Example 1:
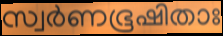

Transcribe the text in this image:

സ്വർണഭൂഷിതാഃ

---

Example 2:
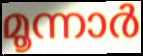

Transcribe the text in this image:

മൂന്നാർ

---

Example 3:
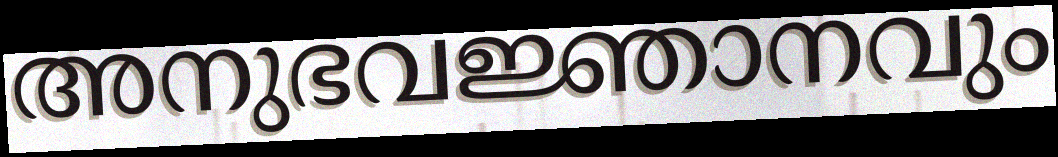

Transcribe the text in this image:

അനുഭവജ്ഞാനവും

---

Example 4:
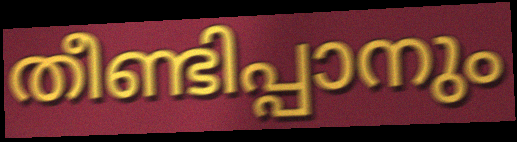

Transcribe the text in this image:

തീണ്ടിപ്പാനും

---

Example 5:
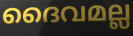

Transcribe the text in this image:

ദൈവമല്ല